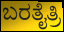
ಬರತೈತ್ರಿ